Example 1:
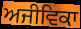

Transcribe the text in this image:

ਅਜੀਵਿਕਾ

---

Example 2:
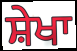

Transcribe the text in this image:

ਸ਼ੇਖਾ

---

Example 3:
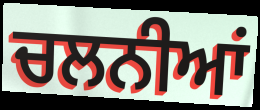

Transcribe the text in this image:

ਚਲਨੀਆਂ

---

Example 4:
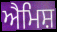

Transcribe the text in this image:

ਐਮਿਸ਼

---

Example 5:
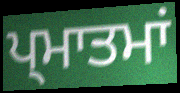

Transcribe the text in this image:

ਪ੍ਮਾਤਮਾਂ